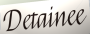
Detainee